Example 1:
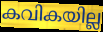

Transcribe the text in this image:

കവികയില്ല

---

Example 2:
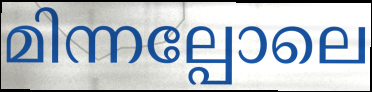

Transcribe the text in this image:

മിന്നല്പോലെ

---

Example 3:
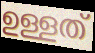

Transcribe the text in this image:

ഉള്ളത്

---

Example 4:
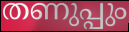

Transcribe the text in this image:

തണുപ്പും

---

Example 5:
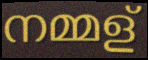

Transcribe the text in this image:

നമ്മള്